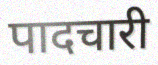
पादचारी